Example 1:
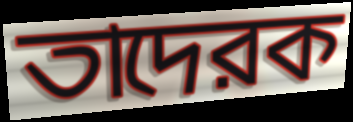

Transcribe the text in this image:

তাদেরক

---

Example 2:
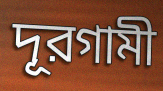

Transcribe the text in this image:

দূরগামী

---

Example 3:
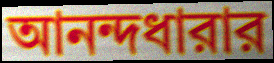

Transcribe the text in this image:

আনন্দধারার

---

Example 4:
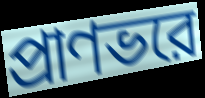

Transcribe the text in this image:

প্রাণভরে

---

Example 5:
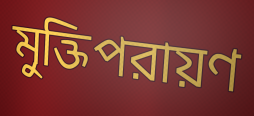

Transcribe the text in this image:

মুক্তিপরায়ণ